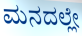
ಮನದಲ್ಲೇ